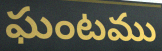
ఘంటము